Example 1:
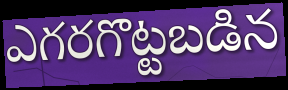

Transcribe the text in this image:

ఎగరగొట్టబడిన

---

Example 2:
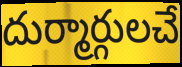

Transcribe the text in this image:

దుర్మార్గులచే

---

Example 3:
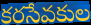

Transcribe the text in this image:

కరసేవకుల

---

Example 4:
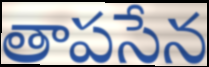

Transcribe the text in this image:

తాపసేన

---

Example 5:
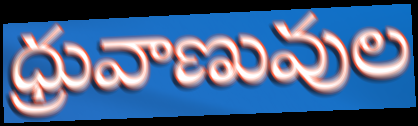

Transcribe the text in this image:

ధ్రువాణువుల